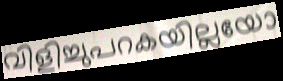
വിളിച്ചുപറകയില്ലയോ